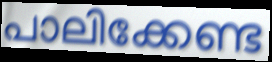
പാലിക്കേണ്ട